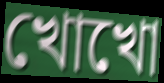
খোখো